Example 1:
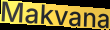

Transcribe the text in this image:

Makvana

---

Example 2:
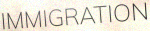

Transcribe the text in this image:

IMMIGRATION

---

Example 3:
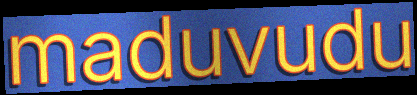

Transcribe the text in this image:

maduvudu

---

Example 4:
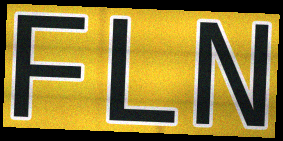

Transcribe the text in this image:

FLN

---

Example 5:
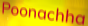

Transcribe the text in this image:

Poonachha